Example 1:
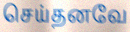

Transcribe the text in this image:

செய்தனவே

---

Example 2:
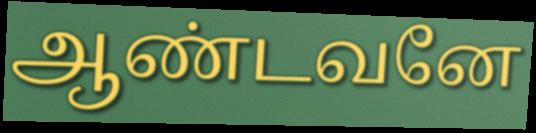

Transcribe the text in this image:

ஆண்டவனே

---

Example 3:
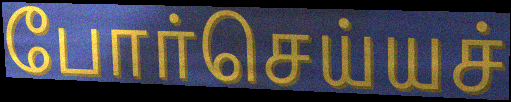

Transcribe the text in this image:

போர்செய்யச்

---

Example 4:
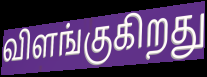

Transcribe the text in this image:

விளங்குகிறது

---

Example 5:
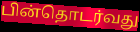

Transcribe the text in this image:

பின்தொடர்வது